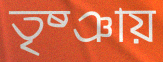
তৃষ্ঞায়